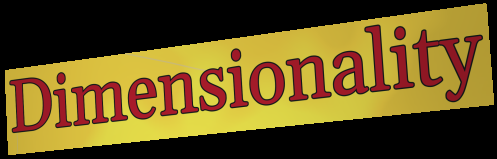
Dimensionality